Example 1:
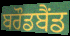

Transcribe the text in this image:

ਬਰੌਡਬੈਂਡ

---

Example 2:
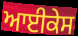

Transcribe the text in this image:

ਆਈਕੇਸ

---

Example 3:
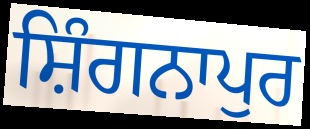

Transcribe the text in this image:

ਸ਼ਿੰਗਨਾਪੁਰ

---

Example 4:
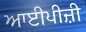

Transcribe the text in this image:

ਆਈਪੀਜ਼ੀ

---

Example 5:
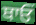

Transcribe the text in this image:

ਥਾਓਂ